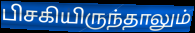
பிசகியிருந்தாலும்